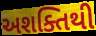
અશક્તિથી